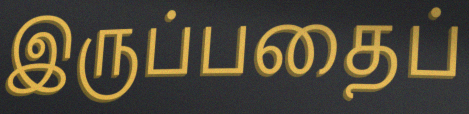
இருப்பதைப்